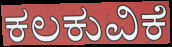
ಕಲಕುವಿಕೆ